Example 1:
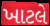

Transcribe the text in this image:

ખાટલે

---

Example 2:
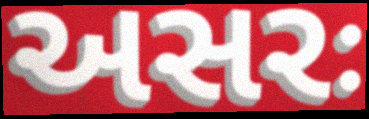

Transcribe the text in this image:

અસરઃ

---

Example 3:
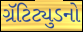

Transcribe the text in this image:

ગ્રૅટિટ્યુડનો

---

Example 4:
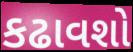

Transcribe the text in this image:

કઢાવશો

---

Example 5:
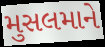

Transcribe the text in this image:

મુસલમાને